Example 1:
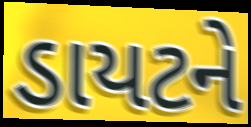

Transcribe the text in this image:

ડાયટને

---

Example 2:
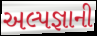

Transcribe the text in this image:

અલ્પજ્ઞાની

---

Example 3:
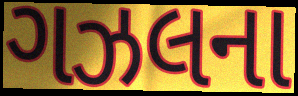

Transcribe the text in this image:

ગઝલના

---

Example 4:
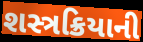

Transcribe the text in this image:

શસ્ત્રક્રિયાની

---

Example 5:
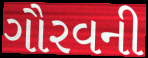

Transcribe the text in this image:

ગૌરવની